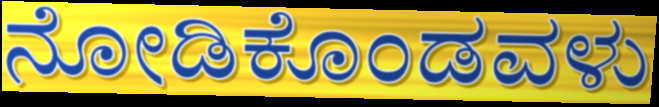
ನೋಡಿಕೊಂಡವಳು